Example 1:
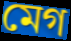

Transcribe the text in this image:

মেগ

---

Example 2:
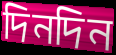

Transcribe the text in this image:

দিনদিন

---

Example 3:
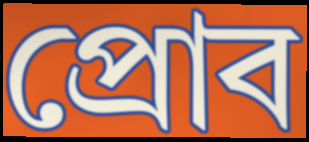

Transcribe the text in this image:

প্রোব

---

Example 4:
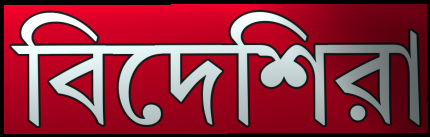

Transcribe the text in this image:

বিদেশিরা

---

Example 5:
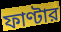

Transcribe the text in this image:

ফাণ্টার